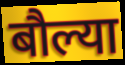
बौल्या